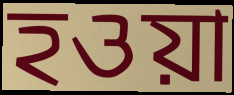
হওয়া